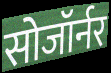
सोजॉर्नर